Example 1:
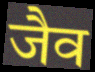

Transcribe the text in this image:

जैव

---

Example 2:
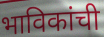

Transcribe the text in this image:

भाविकांची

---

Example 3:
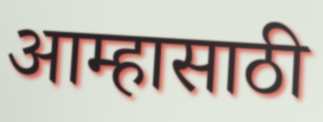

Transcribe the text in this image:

आम्हासाठी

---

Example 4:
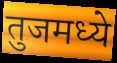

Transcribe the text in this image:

तुजमध्ये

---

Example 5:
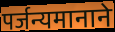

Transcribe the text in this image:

पर्जन्यमानाने